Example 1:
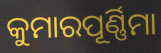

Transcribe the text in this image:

କୁମାରପୂର୍ଣ୍ଣିମା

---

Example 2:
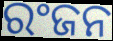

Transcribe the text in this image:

ରଂଜନ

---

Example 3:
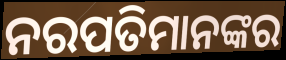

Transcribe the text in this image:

ନରପତିମାନଙ୍କର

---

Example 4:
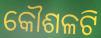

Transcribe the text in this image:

କୌଶଳଟି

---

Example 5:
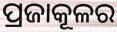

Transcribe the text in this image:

ପ୍ରଜାକୂଳର